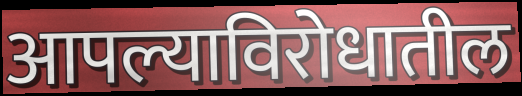
आपल्याविरोधातील